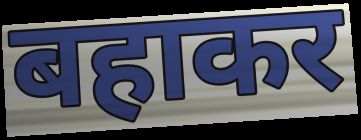
बहाकर